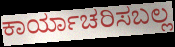
ಕಾರ್ಯಾಚರಿಸಬಲ್ಲ